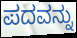
ಪದವನ್ನು